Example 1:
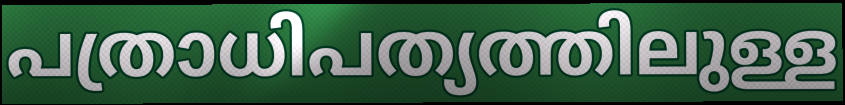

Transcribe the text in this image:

പത്രാധിപത്യത്തിലുള്ള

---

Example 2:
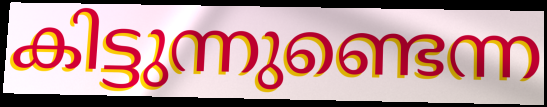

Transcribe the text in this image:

കിട്ടുന്നുണ്ടെന്ന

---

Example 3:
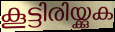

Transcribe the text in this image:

കൂട്ടിരിയ്ക്കുക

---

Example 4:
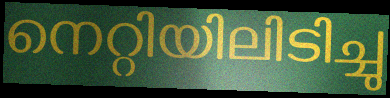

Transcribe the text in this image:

നെറ്റിയിലിടിച്ചു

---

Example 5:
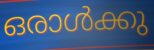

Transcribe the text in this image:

ഒരാൾക്കു